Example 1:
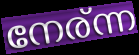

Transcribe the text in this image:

നേര്ന്ന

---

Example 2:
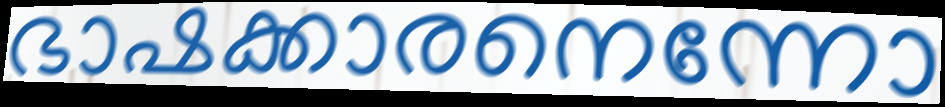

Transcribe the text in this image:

ഭാഷക്കാരനെന്നോ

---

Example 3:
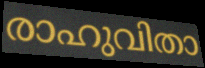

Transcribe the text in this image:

രാഹുവിതാ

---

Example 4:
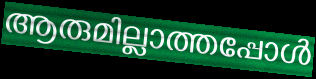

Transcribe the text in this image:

ആരുമില്ലാത്തപ്പോൾ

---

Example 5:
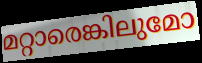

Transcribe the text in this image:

മറ്റാരെങ്കിലുമോ